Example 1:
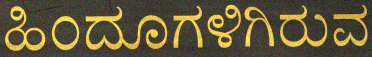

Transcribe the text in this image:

ಹಿಂದೂಗಳಿಗಿರುವ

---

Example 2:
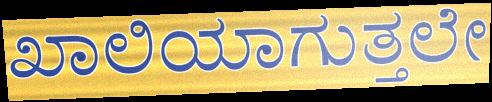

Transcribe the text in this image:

ಖಾಲಿಯಾಗುತ್ತಲೇ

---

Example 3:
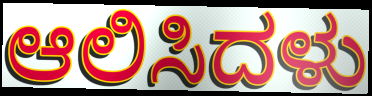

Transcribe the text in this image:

ಆಲಿಸಿದಳು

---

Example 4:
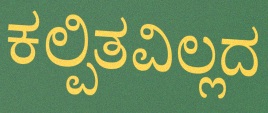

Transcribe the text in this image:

ಕಲ್ಪಿತವಿಲ್ಲದ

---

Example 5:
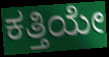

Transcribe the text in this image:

ಕತ್ತಿಯೇ